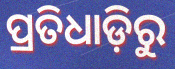
ପ୍ରତିଧାଡ଼ିରୁ